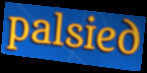
palsied